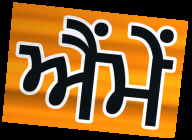
ਐਂਮੇਂ